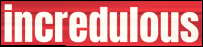
incredulous